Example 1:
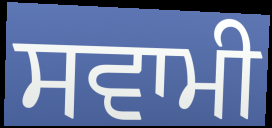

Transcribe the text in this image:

ਸਵਾਮੀ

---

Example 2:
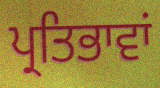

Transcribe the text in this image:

ਪ੍ਰਤਿਭਾਵਾਂ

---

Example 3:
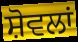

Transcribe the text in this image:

ਸ਼ੋਵਲਾਂ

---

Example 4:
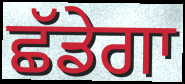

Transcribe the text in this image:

ਛੱਡੇਗਾ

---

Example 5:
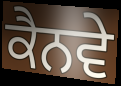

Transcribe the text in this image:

ਕੈਨਵੇ